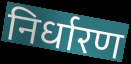
निर्धारण